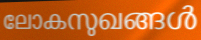
ലോകസുഖങ്ങൾ